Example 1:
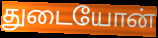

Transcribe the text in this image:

துடையோன்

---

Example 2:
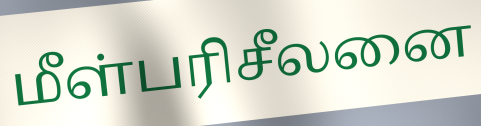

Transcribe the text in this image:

மீள்பரிசீலனை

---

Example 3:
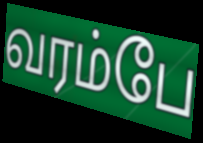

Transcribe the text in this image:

வரம்பே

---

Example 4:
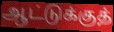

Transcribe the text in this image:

ஆட்டுக்குத்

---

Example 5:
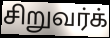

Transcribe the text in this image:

சிறுவர்க்